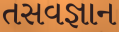
તસવજ્ઞાન